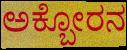
ಅಕ್ಬೋರನ